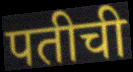
पतीची